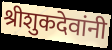
श्रीशुकदेवांनी